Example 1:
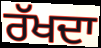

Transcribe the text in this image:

ਰੱਖਦਾ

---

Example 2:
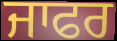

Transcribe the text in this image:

ਜਾਫਰ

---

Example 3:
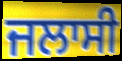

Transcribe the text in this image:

ਜਲਾਸੀ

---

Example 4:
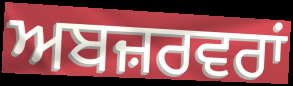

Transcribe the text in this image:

ਅਬਜ਼ਰਵਰਾਂ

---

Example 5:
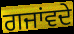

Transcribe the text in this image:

ਗਜਾਂਵਦੇ